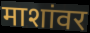
माशांवर